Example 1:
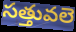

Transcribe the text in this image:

సత్తువలె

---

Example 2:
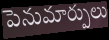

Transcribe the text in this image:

పెనుమార్పులు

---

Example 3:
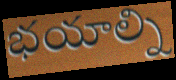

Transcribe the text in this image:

భయాల్ని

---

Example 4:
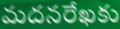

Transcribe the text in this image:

మదనరేఖకు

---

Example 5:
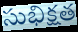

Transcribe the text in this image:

సుభిక్షత